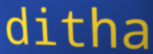
ditha